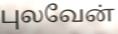
புலவேன்